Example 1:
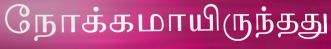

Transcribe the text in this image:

நோக்கமாயிருந்தது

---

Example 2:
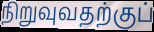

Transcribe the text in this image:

நிறுவுவதற்குப்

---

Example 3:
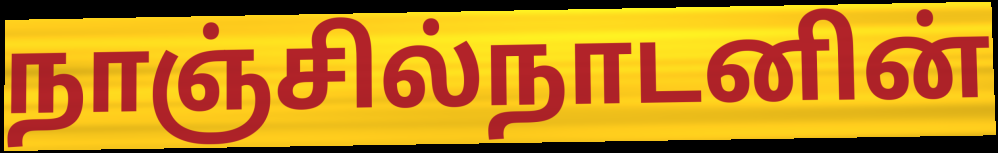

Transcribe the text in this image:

நாஞ்சில்நாடனின்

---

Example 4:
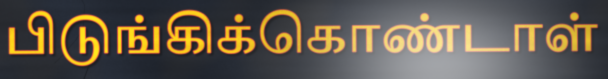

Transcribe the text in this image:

பிடுங்கிக்கொண்டாள்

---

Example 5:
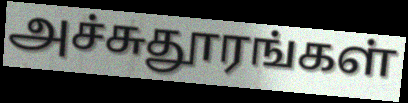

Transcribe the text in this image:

அச்சுதூரங்கள்